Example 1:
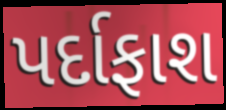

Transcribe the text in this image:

પર્દાફાશ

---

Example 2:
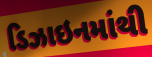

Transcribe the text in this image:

ડિઝાઇનમાંથી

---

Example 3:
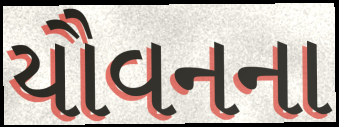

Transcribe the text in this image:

યૌવનના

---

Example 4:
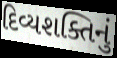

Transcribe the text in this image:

દિવ્યશક્તિનું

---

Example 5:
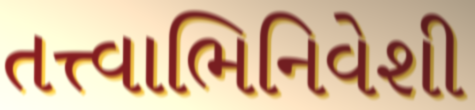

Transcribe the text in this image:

તત્ત્વાભિનિવેશી